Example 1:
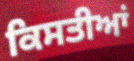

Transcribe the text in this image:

ਕਿਸਤੀਆਂ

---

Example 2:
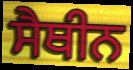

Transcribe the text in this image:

ਸੈਥੀਨ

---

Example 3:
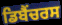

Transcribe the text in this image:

ਡਿਬੈਂਚਰਸ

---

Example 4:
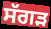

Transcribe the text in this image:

ਸੱਗੜ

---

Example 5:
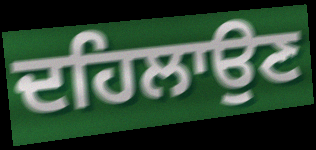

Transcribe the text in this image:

ਦਹਿਲਾਉਣ